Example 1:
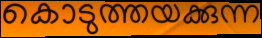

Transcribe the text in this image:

കൊടുത്തയക്കുന്ന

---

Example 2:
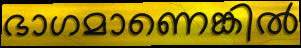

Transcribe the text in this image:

ഭാഗമാണെങ്കിൽ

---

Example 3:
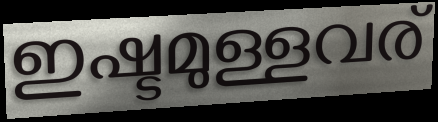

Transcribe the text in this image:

ഇഷ്ടമുള്ളവര്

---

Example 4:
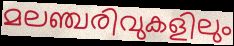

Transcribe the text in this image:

മലഞ്ചരിവുകളിലും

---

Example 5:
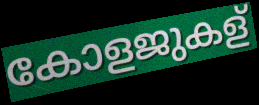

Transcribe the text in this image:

കോളജുകള്